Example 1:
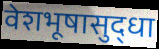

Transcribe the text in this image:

वेशभूषासुद्धा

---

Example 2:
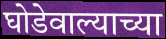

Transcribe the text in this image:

घोडेवाल्याच्या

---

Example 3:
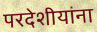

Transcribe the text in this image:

परदेशीयांना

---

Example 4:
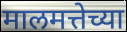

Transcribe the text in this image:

मालमत्तेच्या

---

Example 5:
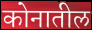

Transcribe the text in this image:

कोनातील